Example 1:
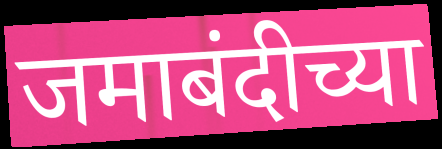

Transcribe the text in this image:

जमाबंदीच्या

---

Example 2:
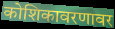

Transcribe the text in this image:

कोशिकावरणावर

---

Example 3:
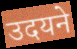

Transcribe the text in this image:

उदयने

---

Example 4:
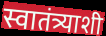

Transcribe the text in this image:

स्वातंत्र्याशी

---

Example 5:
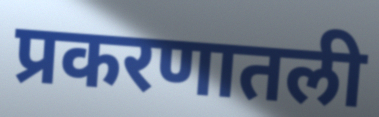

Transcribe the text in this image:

प्रकरणातली